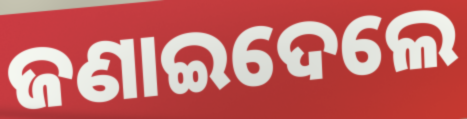
ଜଣାଇଦେଲେ